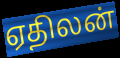
ஏதிலன்